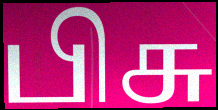
பிசு